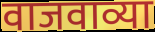
वाजवाव्या